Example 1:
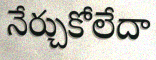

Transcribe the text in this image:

నేర్చుకోలేదా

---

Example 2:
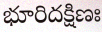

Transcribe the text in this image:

భూరిదక్షిణః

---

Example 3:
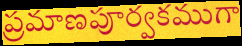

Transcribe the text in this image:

ప్రమాణపూర్వకముగా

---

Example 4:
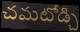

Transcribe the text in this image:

చమటోడ్చి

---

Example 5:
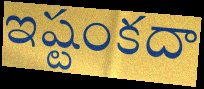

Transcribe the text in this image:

ఇష్టంకదా